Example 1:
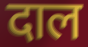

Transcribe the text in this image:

दाल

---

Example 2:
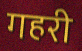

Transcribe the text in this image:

गहरी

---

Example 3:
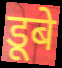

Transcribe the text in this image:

डूबे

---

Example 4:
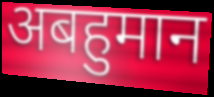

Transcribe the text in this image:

अबहुमान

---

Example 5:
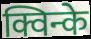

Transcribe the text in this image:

क्विन्के